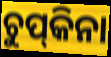
ଚୁପ୍‌କିନା